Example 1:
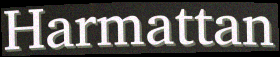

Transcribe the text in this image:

Harmattan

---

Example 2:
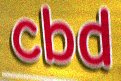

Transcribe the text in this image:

cbd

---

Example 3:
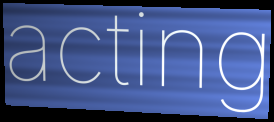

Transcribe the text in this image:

acting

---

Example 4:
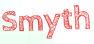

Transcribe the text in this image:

Smyth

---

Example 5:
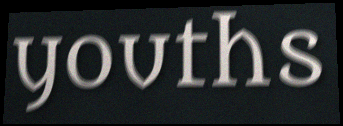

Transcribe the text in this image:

youths